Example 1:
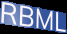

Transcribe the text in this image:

RBML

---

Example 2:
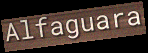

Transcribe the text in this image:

Alfaguara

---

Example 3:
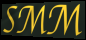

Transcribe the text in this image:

SMM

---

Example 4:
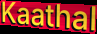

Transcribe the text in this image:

Kaathal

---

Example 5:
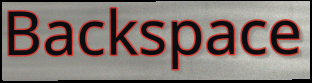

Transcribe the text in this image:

Backspace